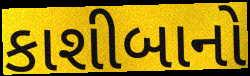
કાશીબાનો